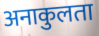
अनाकुलता